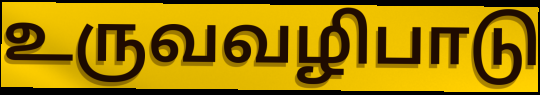
உருவவழிபாடு